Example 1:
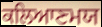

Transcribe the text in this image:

ਕਲਿਆਣਮਯ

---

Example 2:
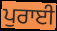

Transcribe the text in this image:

ਪੁਰਾਈ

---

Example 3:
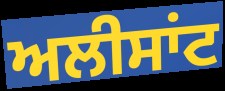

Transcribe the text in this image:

ਅਲੀਸਾਂਟ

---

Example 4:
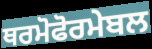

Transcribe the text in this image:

ਥਰਮੋਫੋਰਮੇਬਲ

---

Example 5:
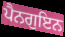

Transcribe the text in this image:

ਪੈਨਗੁਇਨ